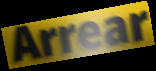
Arrear